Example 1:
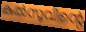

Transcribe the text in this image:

കുൽസുവിന്റെ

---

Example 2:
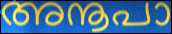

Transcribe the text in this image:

അനൂപാ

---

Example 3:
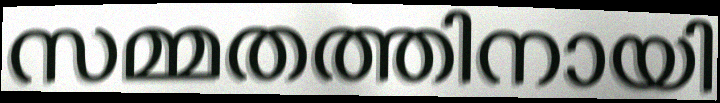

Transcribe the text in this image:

സമ്മതത്തിനായി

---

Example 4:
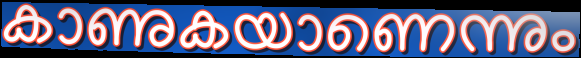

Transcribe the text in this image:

കാണുകയാണെന്നും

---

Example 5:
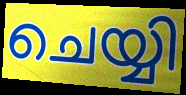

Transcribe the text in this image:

ചെയ്യി